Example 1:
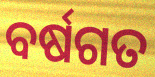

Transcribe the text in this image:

ବର୍ଷଗତ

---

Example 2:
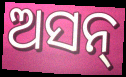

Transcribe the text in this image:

ଅସନ୍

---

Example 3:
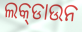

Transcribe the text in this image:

ଲକ୍‌ଡାଉନ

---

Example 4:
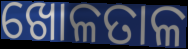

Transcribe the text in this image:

ଖୋଳତାଳ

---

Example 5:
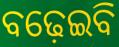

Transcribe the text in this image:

ବଢ଼େଇବି